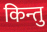
किन्तु